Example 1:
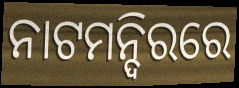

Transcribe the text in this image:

ନାଟମନ୍ଦିରରେ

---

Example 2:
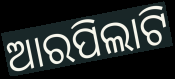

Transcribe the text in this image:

ଆରପିଲାଟି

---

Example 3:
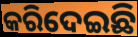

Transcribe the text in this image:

କରିଦେଇଛି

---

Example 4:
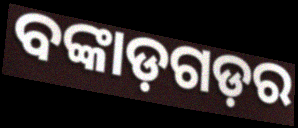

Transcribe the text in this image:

ବଙ୍କାଡ଼ଗଡ଼ର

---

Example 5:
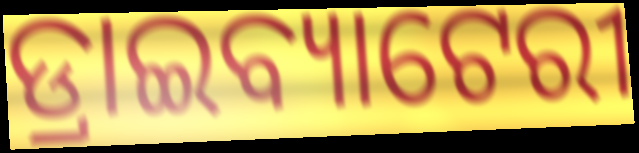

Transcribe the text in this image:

ଡ୍ରାଇବ୍ୟାଟେରୀ